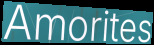
Amorites